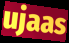
ujaas